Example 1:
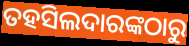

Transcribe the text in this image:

ତହସିଲଦାରଙ୍କଠାରୁ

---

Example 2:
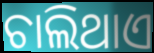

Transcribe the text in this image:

ଚାଲିଥାଏ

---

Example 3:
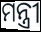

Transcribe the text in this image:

ମନ୍ତ୍ରୀ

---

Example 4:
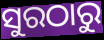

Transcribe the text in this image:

ସୁରଠାରୁ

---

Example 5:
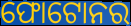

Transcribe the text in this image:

ଫୋଟୋନର